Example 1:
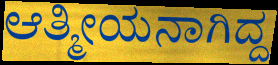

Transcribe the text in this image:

ಆತ್ಮೀಯನಾಗಿದ್ದ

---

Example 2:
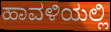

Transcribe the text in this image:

ಹಾವಳಿಯಲ್ಲಿ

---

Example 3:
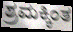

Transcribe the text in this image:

ಶ್ರಮಕ್ಕಿಂತ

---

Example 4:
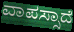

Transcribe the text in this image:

ವಾಪಸ್ಸಾದೆ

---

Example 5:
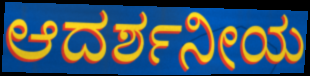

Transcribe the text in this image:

ಆದರ್ಶನೀಯ